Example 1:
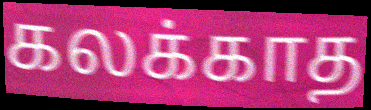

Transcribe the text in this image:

கலக்காத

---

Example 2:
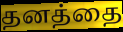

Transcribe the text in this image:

தனத்தை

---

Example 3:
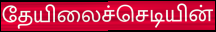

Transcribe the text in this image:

தேயிலைச்செடியின்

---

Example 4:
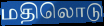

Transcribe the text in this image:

மதிலொடு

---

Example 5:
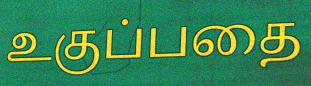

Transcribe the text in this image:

உகுப்பதை